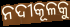
ନଦୀକୂଳକୁ